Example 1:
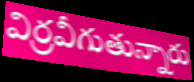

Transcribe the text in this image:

విర్రవీగుతున్నారు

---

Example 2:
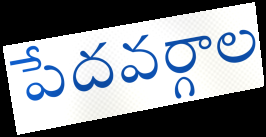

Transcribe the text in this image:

పేదవర్గాల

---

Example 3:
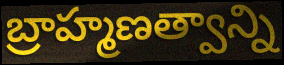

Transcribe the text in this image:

బ్రాహ్మణత్వాన్ని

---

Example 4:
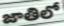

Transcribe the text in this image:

జాతిలో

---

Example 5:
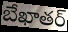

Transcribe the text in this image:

బేఖాతర్